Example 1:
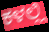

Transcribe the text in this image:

ಕಳಲ್ಲಿ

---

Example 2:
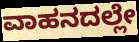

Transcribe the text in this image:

ವಾಹನದಲ್ಲೇ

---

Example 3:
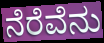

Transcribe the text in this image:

ನೆರೆವೆನು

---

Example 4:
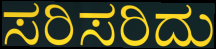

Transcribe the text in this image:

ಸರಿಸರಿದು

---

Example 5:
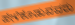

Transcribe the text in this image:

ಹೇಳಿಕೊಡುವವರು